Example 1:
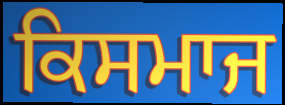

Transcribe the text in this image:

ਕਿਸਮਾਜ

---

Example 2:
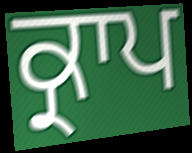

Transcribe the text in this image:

ਕ੍ਰਾਪ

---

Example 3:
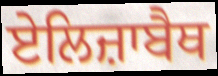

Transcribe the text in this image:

ਏਲਿਜ਼ਾਬੈਥ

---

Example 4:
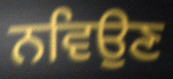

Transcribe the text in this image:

ਨਵਿਉਣ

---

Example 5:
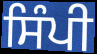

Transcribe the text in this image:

ਸਿੰਪੀ